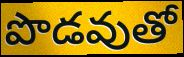
పొడవుతో